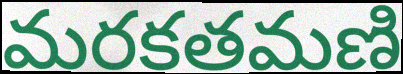
మరకతమణి